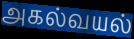
அகல்வயல்